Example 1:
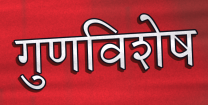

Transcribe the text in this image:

गुणविशेष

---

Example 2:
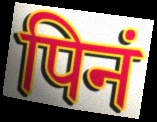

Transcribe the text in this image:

पिनं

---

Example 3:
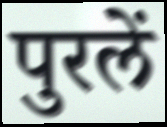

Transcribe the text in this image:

पुरलें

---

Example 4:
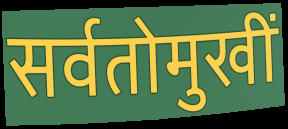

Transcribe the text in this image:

सर्वतोमुखीं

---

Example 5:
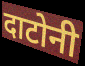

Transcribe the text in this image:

दाटोनी